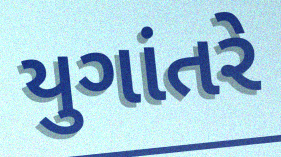
યુગાંતરે